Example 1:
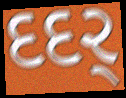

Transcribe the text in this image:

દદર્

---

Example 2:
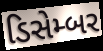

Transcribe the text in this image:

ડિસેમ્બર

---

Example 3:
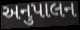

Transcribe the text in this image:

અનુપાલન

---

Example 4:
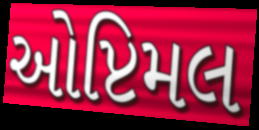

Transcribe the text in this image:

ઓપ્ટિમલ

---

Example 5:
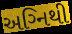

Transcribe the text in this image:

અગ્‍નિથી